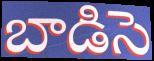
బాడిసె